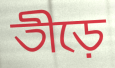
তীড়ে